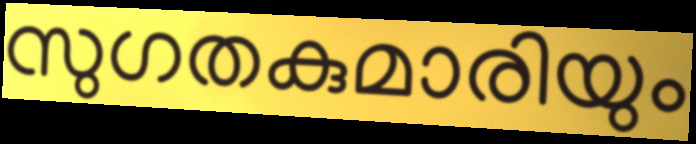
സുഗതകുമാരിയും